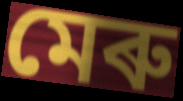
মেৰু